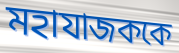
মহাযাজককে